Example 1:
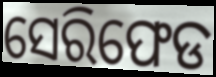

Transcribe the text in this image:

ସେରିଫେଡ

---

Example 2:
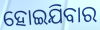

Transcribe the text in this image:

ହୋଇଯିବାର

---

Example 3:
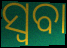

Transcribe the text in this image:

ସ୍ୱବା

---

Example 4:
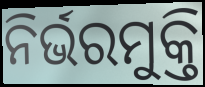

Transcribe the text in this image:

ନିର୍ଭରମୁକ୍ତି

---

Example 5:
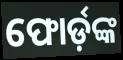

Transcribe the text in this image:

ଫୋର୍ଡ଼ଙ୍କ